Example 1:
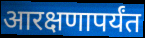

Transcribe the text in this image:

आरक्षणापर्यंत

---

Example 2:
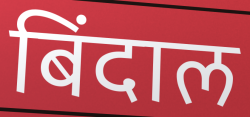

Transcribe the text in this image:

बिंदाल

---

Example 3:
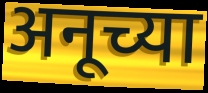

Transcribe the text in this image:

अनूच्या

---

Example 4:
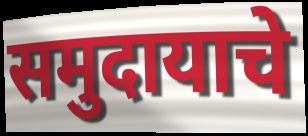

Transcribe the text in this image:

समुदायाचे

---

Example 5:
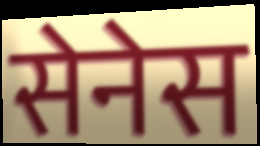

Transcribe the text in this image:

सेनेस